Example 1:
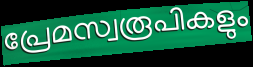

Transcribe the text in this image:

പ്രേമസ്വരൂപികളും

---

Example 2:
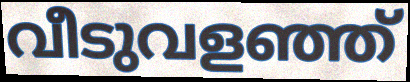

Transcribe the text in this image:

വീടുവളഞ്ഞ്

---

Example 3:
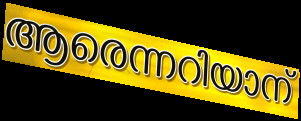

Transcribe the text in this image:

ആരെന്നറിയാന്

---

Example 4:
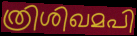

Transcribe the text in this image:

ത്രിശിഖമപി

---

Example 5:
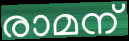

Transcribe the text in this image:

രാമന്